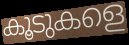
കൂടുകളെ